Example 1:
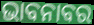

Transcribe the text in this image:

ଭାବନାବର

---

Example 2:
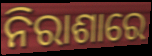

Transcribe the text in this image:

ନିରାଶାରେ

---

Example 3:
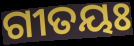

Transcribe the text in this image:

ଗୀତୟଃ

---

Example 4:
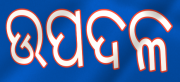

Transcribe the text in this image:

ଉପଦଳ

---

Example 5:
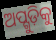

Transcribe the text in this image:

ଅପ୍ଗୁଡ଼ିକୁ